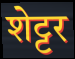
शेट्टर